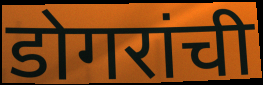
डोगरांची